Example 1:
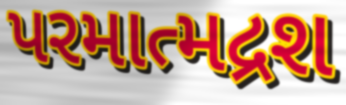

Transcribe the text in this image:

પરમાત્મદ્રશ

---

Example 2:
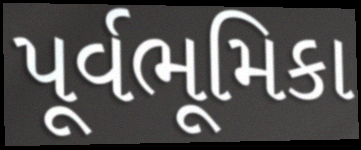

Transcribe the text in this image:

પૂર્વભૂમિકા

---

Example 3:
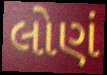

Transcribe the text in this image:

લોણં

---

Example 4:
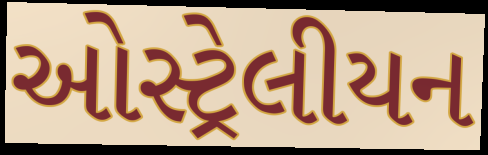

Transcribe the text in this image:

ઓસ્ટ્રેલીયન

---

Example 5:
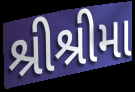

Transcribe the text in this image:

શ્રીશ્રીમા